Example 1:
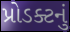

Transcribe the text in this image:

પ્રોડક્ટનું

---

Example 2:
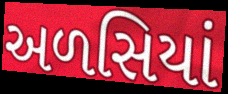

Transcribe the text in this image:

અળસિયાં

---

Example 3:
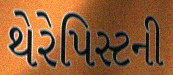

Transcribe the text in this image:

થેરેપિસ્ટની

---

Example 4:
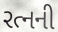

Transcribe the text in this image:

રત્નની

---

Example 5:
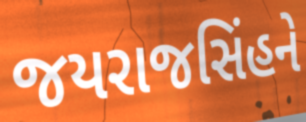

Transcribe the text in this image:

જયરાજસિંહને